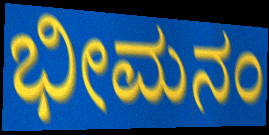
ಭೀಮನಂ